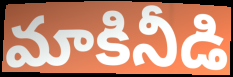
మాకినీడి